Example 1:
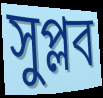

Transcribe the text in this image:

সুপ্লব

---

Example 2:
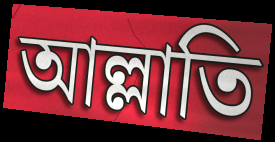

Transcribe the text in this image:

আল্লাতি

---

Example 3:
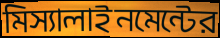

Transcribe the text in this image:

মিস্যালাইনমেন্টের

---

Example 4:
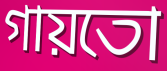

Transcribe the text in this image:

গায়তো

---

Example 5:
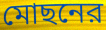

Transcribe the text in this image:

মোছনের